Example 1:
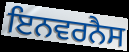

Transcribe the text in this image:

ਇਨਵਰਨੈਸ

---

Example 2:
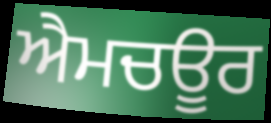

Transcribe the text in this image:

ਐਮਚਊਰ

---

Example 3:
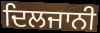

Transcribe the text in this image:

ਦਿਲਜਾਨੀ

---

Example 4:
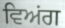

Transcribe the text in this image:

ਵਿਅਂਗ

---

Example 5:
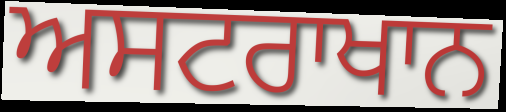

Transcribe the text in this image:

ਅਸਟਰਾਖਾਨ